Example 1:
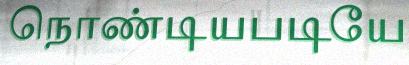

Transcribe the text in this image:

நொண்டியபடியே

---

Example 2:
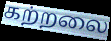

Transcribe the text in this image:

கற்றலை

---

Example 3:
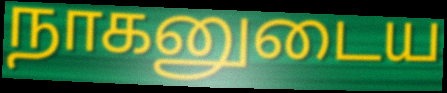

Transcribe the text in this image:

நாகனுடைய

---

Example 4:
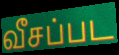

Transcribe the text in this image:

வீசப்பட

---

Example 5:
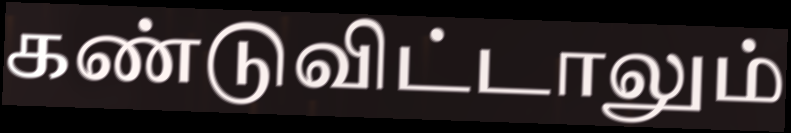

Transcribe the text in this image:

கண்டுவிட்டாலும்